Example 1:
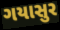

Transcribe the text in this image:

ગયાસુર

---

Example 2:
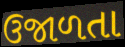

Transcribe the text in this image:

ઉજાળતા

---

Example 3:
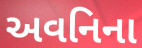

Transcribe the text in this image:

અવનિના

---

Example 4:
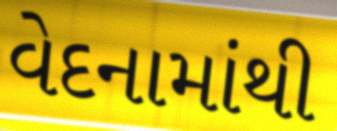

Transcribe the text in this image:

વેદનામાંથી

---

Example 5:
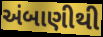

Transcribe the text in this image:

અંબાણીથી